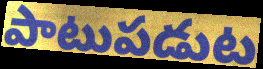
పాటుపడుట